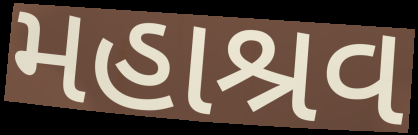
મહાશ્રવ